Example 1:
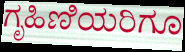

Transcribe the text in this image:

ಗೃಹಿಣಿಯರಿಗೂ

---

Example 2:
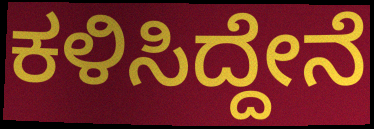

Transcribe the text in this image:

ಕಳಿಸಿದ್ದೇನೆ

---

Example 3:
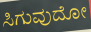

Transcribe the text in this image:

ಸಿಗುವುದೋ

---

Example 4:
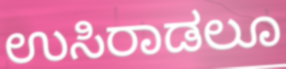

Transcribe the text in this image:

ಉಸಿರಾಡಲೂ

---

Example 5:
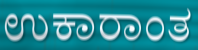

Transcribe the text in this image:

ಉಕಾರಾಂತ